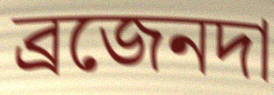
ব্রজেনদা